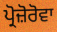
ਪ੍ਰੋਜ਼ੋਰੋਵਾ